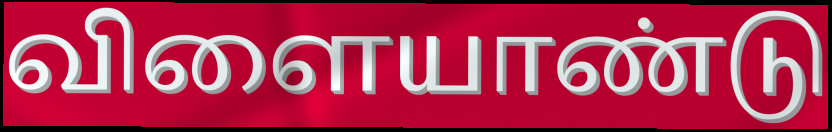
விளையாண்டு